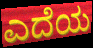
ಎದೆಯ